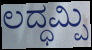
ಲದ್ಧಮ್ಪಿ